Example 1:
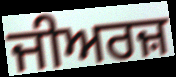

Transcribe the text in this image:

ਜੀਅਰਜ਼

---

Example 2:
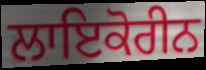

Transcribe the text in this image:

ਲਾਇਕੋਰੀਨ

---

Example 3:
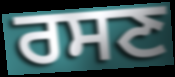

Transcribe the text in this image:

ਰਸਣ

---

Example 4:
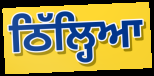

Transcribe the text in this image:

ਠਿੱਲ੍ਹਿਆ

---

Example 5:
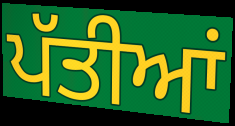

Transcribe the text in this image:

ਪੱਤੀਆਂ